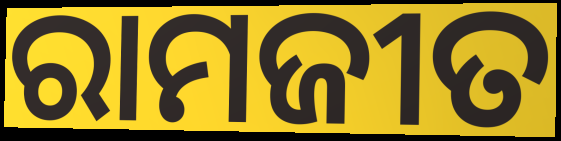
ରାମଜୀତ